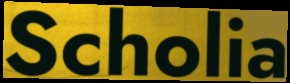
Scholia